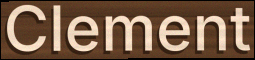
Clement